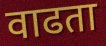
वाढता